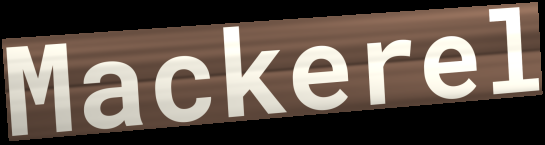
Mackerel